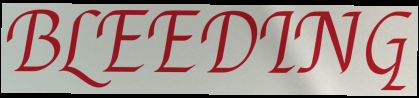
BLEEDING